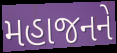
મહાજનને